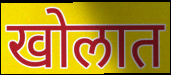
खोलात